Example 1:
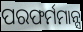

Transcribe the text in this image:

ପରଫର୍ମମାନ୍ସ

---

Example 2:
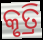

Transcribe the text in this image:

କୃତ୍ରି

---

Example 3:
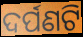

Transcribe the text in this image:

ଦର୍ପଣଟି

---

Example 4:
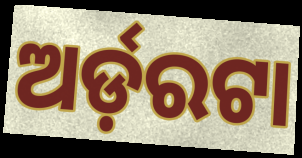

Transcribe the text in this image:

ଅର୍ଡ଼ରଟା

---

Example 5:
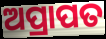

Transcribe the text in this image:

ଅପ୍ରାପତ